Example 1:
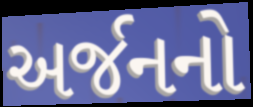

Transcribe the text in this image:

અર્જનનો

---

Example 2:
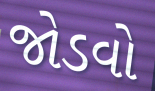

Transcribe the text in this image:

જોડવો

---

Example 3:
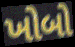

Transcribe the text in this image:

ખોબો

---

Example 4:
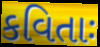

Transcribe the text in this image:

કવિતાઃ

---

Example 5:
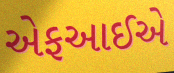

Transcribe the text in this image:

એફઆઈએ